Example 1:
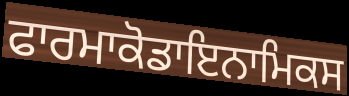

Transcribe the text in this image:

ਫਾਰਮਾਕੋਡਾਇਨਾਮਿਕਸ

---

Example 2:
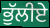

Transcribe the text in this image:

ਭੁੱਲੀਏ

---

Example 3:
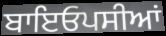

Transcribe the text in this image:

ਬਾਇਓਪਸੀਆਂ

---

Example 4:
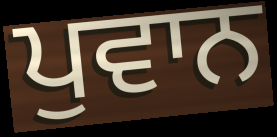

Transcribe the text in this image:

ਪੁਵਾਨ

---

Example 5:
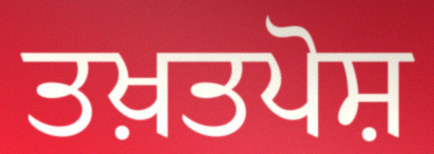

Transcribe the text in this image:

ਤਖ਼ਤਪੋਸ਼